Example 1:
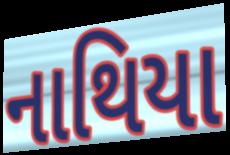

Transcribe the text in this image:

નાથિયા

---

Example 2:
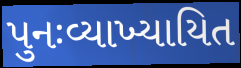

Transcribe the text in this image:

પુનઃવ્યાખ્યાયિત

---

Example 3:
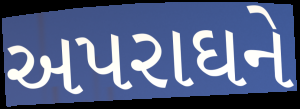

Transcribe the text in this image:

અપરાઘને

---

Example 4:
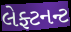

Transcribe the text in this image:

લેફ્ટનન્ટ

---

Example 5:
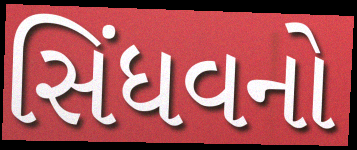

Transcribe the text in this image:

સિંધવનો